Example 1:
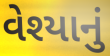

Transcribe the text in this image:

વેશ્યાનું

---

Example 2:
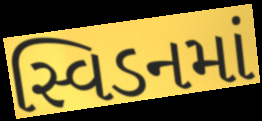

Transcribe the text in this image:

સ્વિડનમાં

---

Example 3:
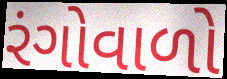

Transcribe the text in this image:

રંગોવાળો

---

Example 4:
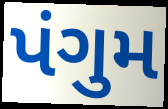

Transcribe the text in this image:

પંગુમ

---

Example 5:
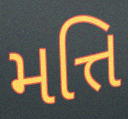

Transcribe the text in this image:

મત્તિ